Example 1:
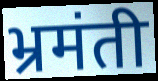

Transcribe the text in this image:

भ्रमंती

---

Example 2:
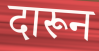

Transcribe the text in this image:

दारून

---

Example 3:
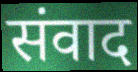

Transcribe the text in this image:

संवाद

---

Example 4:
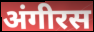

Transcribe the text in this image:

अंगीरस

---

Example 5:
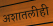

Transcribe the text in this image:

अशातलीही